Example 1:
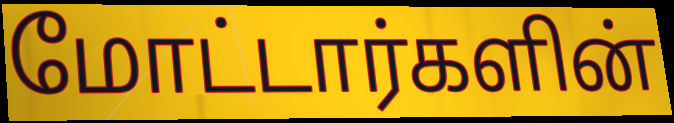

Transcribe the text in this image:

மோட்டார்களின்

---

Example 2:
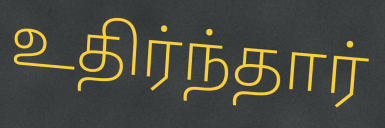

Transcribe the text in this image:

உதிர்ந்தார்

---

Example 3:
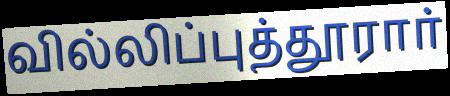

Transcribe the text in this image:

வில்லிப்புத்தூரார்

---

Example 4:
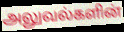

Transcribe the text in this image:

அலுவல்களின்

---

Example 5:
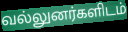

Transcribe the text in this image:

வல்லுனர்களிடம்